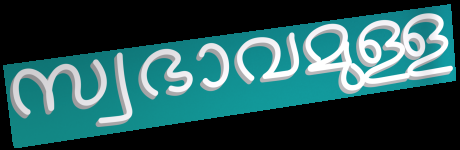
സ്വഭാവമുള്ള